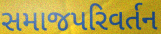
સમાજપરિવર્તન